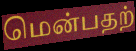
மென்பதற்